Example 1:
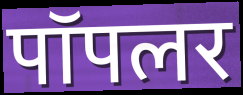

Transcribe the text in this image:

पॉपलर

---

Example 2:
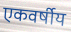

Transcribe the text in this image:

एकवर्षीय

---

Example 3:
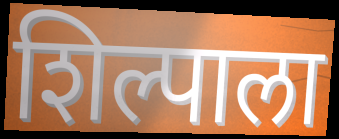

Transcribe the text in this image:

शिल्पाला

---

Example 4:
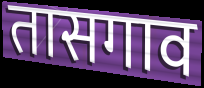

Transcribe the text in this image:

तासगाव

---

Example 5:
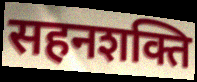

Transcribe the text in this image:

सहनशक्ति